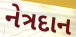
નેત્રદાન